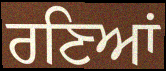
ਰਣਿਆਂ